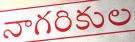
నాగరికుల